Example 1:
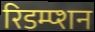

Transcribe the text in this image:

रिडम्प्शन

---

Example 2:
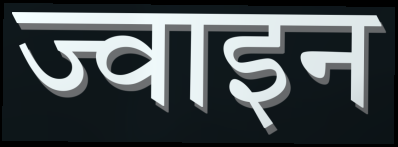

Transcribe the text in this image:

ज्वाइन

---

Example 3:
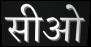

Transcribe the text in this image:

सीओ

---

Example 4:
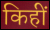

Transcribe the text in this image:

किहीं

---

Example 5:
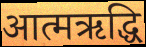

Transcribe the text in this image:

आत्मऋद्धि